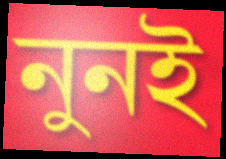
নুনই